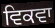
ਵਿਕਵਾ